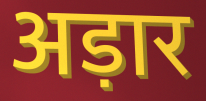
अड़ार